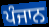
ਪੰਜਾਨ